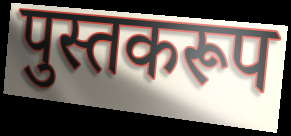
पुस्तकरूप